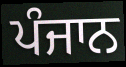
ਪੰਜਾਨ